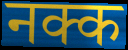
नक्क